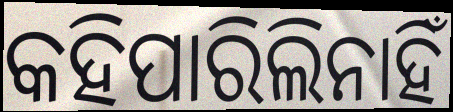
କହିପାରିଲିନାହିଁ